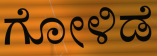
ಗೋಳಿಡೆ